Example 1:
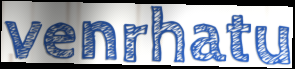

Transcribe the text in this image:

venrhatu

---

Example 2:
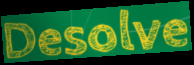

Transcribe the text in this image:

Desolve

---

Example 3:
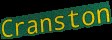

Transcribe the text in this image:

Cranston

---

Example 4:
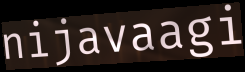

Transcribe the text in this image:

nijavaagi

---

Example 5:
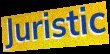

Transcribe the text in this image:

Juristic